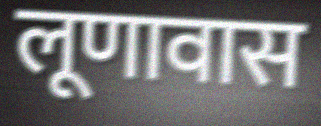
लूणावास